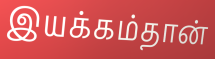
இயக்கம்தான்